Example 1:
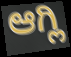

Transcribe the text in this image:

ಆಗ್ಲಿ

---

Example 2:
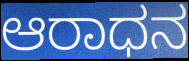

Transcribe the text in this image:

ಆರಾಧನ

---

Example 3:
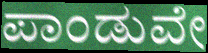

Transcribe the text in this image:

ಪಾಂಡುವೇ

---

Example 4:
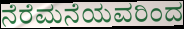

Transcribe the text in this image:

ನೆರೆಮನೆಯವರಿಂದ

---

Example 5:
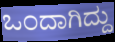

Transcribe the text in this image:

ಒಂದಾಗಿದ್ದು